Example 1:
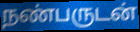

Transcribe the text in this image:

நண்பருடன்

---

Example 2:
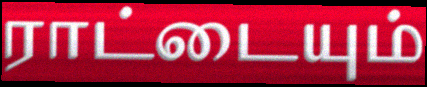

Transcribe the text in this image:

ராட்டையும்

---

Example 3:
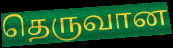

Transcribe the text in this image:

தெருவான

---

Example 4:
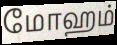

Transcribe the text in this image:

மோஹம்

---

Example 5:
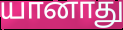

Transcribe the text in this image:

யானாது